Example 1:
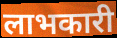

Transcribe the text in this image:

लाभकारी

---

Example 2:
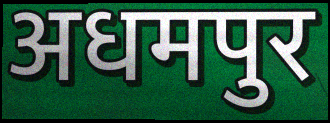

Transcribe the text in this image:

अधमपुर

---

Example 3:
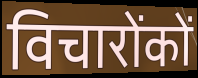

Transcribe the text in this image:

विचारोंकों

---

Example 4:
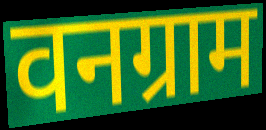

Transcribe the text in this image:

वनग्राम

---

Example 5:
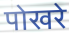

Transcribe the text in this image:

पोखरे